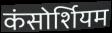
कंसोर्शियम